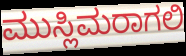
ಮುಸ್ಲಿಮರಾಗಲಿ